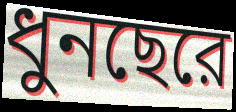
ধুনছেরে